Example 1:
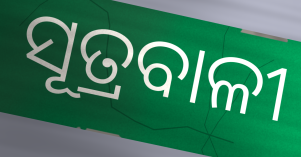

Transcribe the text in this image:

ସୂତ୍ରବାଳୀ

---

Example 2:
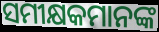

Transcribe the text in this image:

ସମୀକ୍ଷକମାନଙ୍କ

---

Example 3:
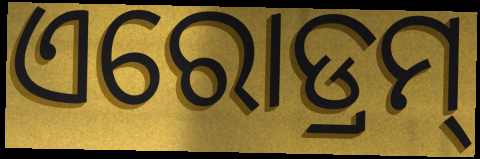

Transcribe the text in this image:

ଏରୋଡ୍ରମ୍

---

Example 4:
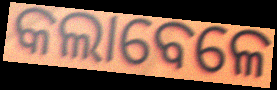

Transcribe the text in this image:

କଲାବେଳେ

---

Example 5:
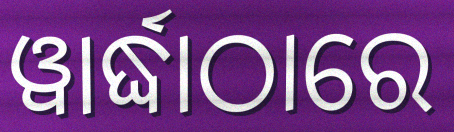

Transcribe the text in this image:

ୱାର୍ଦ୍ଧାଠାରେ